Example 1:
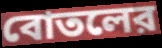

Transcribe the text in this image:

বোতলের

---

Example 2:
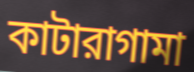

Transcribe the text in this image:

কাটারাগামা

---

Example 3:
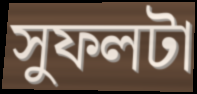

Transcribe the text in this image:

সুফলটা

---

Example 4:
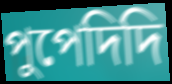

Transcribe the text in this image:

পুপেদিদি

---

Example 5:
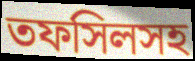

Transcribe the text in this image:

তফসিলসহ